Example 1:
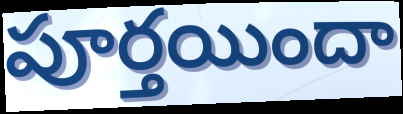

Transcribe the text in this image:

పూర్తయిందా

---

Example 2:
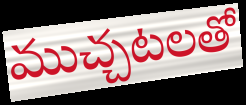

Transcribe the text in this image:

ముచ్చటలతో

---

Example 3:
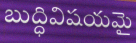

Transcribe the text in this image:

బుద్ధివిషయమై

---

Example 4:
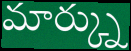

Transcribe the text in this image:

మార్క్ను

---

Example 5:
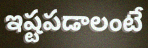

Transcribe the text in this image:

ఇష్టపడాలంటే